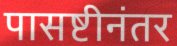
पासष्टीनंतर